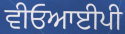
ਵੀਓਆਈਪੀ